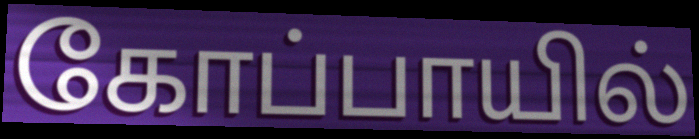
கோப்பாயில்